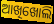
ଆଖିଖୋଲି